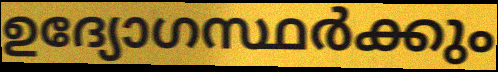
ഉദ്യോഗസ്ഥർക്കും